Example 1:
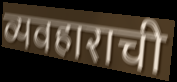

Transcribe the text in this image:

व्यवहाराची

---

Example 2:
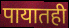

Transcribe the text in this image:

पायातही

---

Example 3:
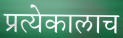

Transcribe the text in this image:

प्रत्येकालाच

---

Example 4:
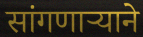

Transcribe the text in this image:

सांगणार्‍याने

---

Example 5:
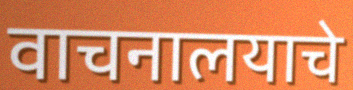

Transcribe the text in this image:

वाचनालयाचे